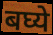
बघ्ये